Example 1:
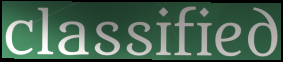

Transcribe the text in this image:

classified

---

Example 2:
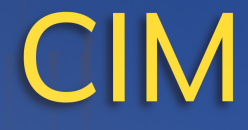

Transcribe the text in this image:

CIM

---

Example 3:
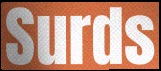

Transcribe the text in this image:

Surds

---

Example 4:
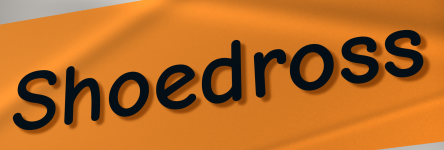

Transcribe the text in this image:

Shoedross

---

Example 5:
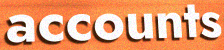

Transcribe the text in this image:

accounts